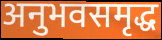
अनुभवसमृद्ध